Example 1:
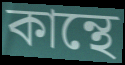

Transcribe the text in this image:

কান্থে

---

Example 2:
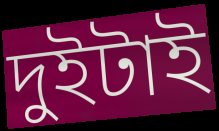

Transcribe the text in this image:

দুইটাই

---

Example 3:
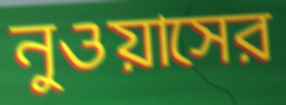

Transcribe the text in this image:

নুওয়াসের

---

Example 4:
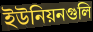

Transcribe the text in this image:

ইউনিয়নগুলি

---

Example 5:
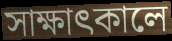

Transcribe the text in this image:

সাক্ষাৎকালে